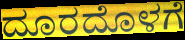
ದೂರದೊಳಗೆ